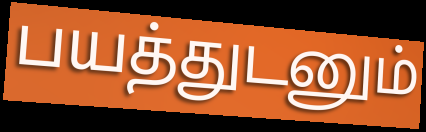
பயத்துடனும்